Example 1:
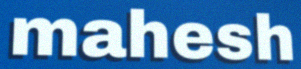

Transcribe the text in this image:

mahesh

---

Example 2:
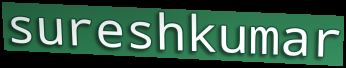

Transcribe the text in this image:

sureshkumar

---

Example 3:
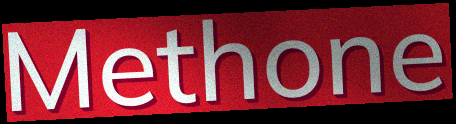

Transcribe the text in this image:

Methone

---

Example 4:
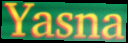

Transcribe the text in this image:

Yasna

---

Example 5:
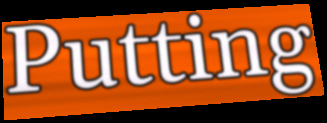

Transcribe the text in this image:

Putting